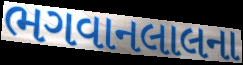
ભગવાનલાલના